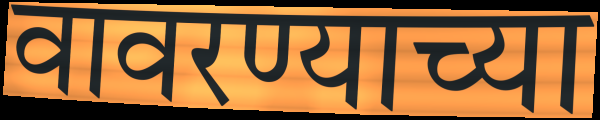
वावरण्याच्या